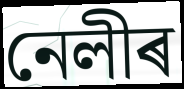
নেলীৰ